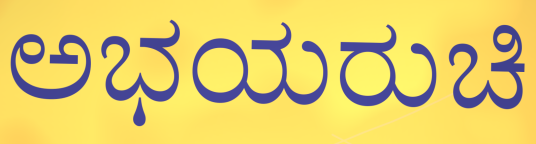
ಅಭಯರುಚಿ